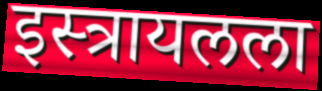
इस्त्रायलला